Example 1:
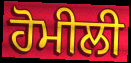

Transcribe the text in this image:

ਹੋਮੀਲੀ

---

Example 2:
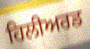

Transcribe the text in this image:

ਹਿਲੀਅਰਡ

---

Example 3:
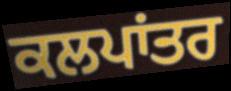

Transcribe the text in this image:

ਕਲਪਾਂਤਰ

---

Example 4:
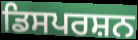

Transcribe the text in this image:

ਡਿਸਪਰਸ਼ਨ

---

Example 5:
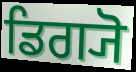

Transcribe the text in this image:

ਡਿਗ੍ਯੋ